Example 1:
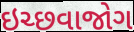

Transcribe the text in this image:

ઇચ્છવાજોગ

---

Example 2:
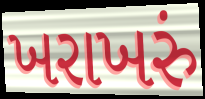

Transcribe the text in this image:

ખરાખરું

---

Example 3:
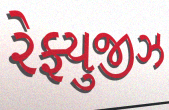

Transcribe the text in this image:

રેફ્યુજીઝ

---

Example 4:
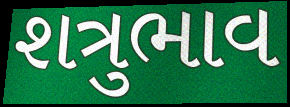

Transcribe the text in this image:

શત્રુભાવ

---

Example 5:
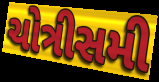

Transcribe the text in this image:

ચોત્રીસમી